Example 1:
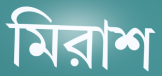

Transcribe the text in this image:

মিরাশ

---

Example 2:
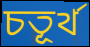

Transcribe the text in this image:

চতূর্থ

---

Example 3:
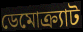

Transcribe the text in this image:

ডেমোক্র্যাট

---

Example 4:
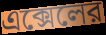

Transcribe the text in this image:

এক্সেলের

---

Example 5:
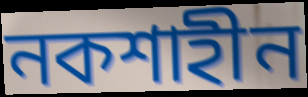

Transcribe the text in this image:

নকশাহীন